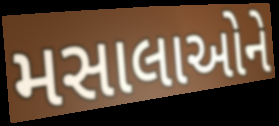
મસાલાઓને